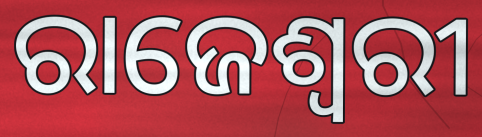
ରାଜେଶ୍ଵରୀ